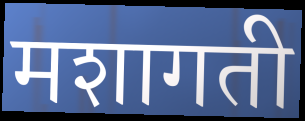
मशागती